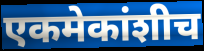
एकमेकांशीच